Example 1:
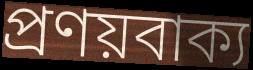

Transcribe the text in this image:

প্রণয়বাক্য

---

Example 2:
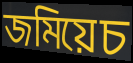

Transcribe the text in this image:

জমিয়েচ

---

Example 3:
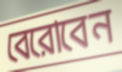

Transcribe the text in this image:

বেরোবেন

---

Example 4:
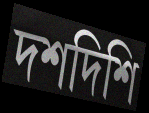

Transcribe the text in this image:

দশদিশি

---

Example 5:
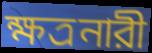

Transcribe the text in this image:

ক্ষত্রনারী